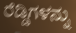
ರೆಡ್ಡಿಗಳನ್ನು